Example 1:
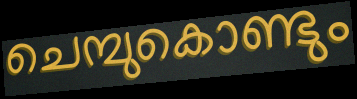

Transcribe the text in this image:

ചെമ്പുകൊണ്ടും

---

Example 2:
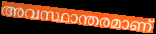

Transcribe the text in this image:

അവസ്ഥാന്തരമാണ്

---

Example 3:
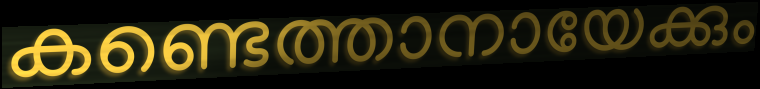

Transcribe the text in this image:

കണ്ടെത്താനായേക്കും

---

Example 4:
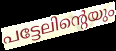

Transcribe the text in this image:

പട്ടേലിന്റെയും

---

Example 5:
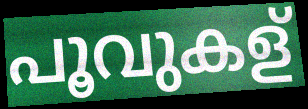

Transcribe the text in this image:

പൂവുകള്